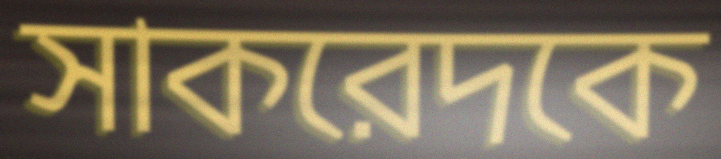
সাকরেদকে